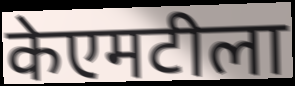
केएमटीला